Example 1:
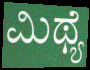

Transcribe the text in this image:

ಮಿಥ್ಯೆ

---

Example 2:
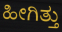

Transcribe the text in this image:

ಹೀಗಿತ್ತು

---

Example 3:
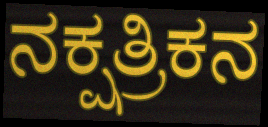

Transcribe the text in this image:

ನಕ್ಷತ್ರಿಕನ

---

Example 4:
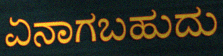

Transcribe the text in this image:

ಏನಾಗಬಹುದು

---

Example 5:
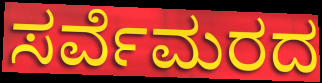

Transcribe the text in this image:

ಸರ್ವೆಮರದ